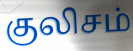
குலிசம்